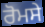
ਰੋਮਸੇ